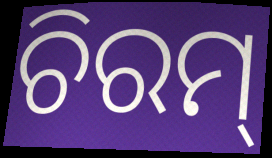
ଚିରମ୍